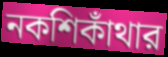
নকশিকাঁথার